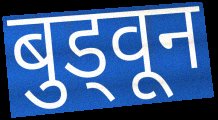
बुड्वून